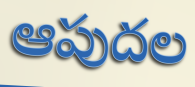
ఆపుదల